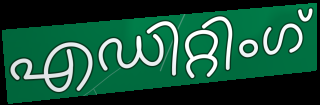
എഡിറ്റിംഗ്